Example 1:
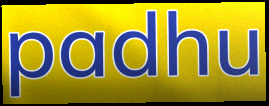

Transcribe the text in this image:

padhu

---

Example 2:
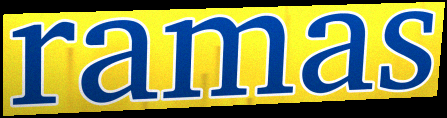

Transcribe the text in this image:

ramas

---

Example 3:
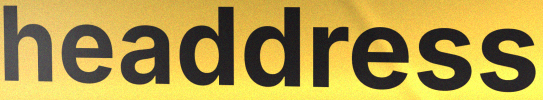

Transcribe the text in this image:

headdress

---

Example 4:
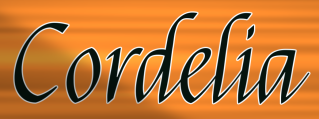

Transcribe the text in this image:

Cordelia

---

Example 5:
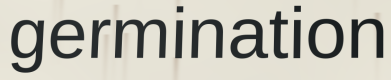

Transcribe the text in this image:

germination